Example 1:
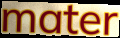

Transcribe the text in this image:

mater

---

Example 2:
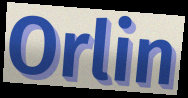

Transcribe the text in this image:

Orlin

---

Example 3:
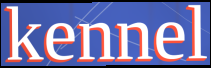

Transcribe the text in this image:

kennel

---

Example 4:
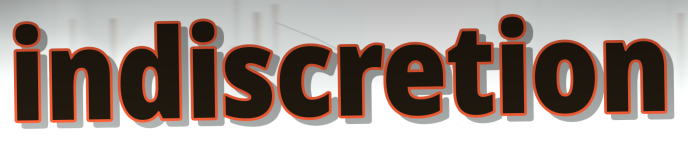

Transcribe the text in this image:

indiscretion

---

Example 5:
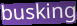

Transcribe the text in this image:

busking